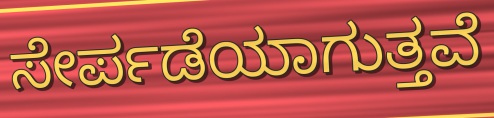
ಸೇರ್ಪಡೆಯಾಗುತ್ತವೆ